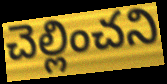
చెల్లించని